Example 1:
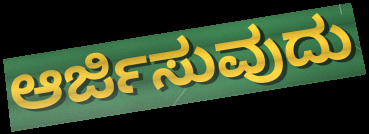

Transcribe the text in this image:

ಆರ್ಜಿಸುವುದು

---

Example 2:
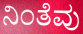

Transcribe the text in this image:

ನಿಂತೆವು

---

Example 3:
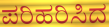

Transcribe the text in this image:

ಪರಿಹರಿಸಿದ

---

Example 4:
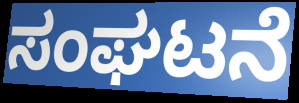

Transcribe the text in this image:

ಸಂಘಟನೆ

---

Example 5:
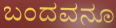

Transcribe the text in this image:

ಬಂದವನೂ